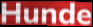
Hunde